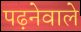
पढ़नेवाले